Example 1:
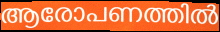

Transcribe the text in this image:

ആരോപണത്തിൽ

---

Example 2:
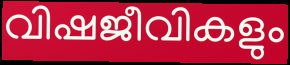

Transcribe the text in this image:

വിഷജീവികളും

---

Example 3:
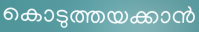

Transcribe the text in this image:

കൊടുത്തയക്കാൻ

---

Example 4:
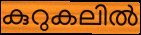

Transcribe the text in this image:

കുറുകലിൽ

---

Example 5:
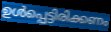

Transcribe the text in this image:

ഉൾപ്പെട്ടിരിക്കണം